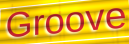
Groove